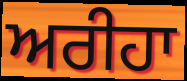
ਅਰੀਹਾ